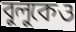
বুলুকেও